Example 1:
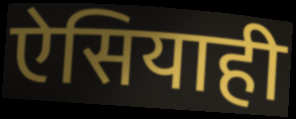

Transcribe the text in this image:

ऐसियाही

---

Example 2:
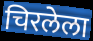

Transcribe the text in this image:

चिरलेला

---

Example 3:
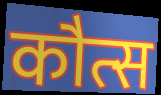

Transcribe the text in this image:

कौत्स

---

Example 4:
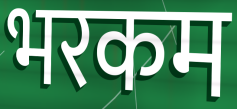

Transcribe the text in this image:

भरकम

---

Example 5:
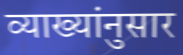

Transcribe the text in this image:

व्याख्यांनुसार